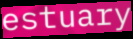
estuary